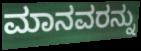
ಮಾನವರನ್ನು